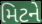
મિટને